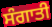
ਸੰਗਾਤੀ